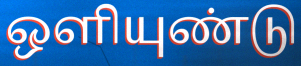
ஒளியுண்டு